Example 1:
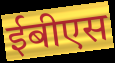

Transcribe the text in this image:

ईबीएस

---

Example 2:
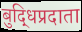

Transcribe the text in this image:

बुद्धिप्रदाता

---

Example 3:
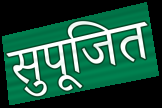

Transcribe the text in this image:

सुपूजित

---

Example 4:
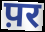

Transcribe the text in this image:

प़र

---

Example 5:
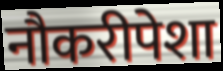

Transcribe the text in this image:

नौकरीपेशा